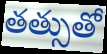
తత్సుతో